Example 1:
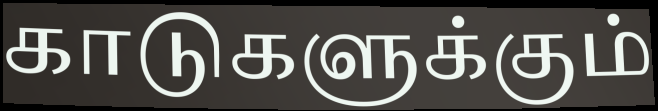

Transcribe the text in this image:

காடுகளுக்கும்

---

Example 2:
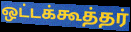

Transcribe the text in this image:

ஒட்டக்கூத்தர்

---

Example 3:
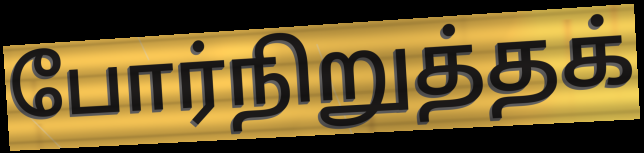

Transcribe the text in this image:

போர்நிறுத்தக்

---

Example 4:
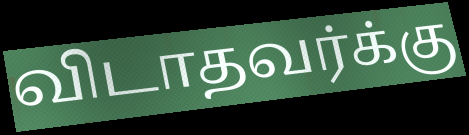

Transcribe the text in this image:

விடாதவர்க்கு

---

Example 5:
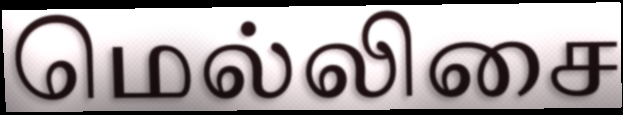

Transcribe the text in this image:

மெல்லிசை